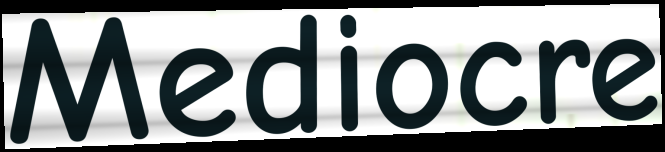
Mediocre